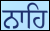
ਨਾਹਿ